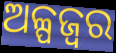
ଅଳ୍ପଜ୍ଵର